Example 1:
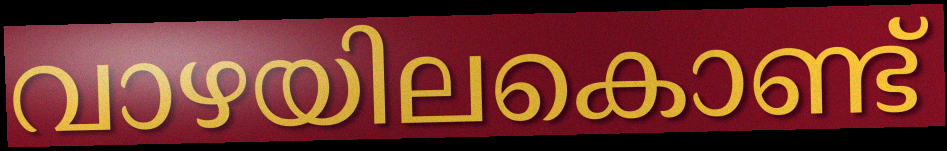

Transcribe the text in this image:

വാഴയിലകൊണ്ട്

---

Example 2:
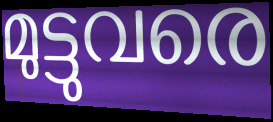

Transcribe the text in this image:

മുട്ടുവരെ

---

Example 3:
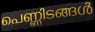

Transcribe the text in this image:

പെണ്ണിടങ്ങൾ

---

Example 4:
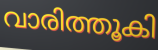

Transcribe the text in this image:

വാരിത്തൂകി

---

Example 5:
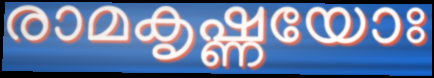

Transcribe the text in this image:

രാമകൃഷ്ണയോഃ